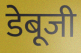
डेबूजी